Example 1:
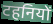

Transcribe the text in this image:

टहनियों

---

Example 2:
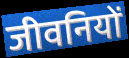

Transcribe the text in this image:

जीवनियों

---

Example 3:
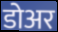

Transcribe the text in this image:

डोअर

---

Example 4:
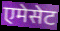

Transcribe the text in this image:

एमेसेट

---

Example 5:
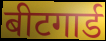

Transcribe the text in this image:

बीटगार्ड